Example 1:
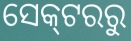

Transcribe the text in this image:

ସେକ୍‌ଟରରୁ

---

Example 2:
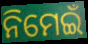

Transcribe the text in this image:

ନିମେଇଁ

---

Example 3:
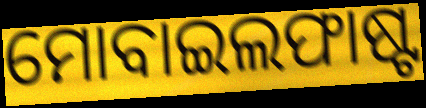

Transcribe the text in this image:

ମୋବାଇଲଫାଷ୍ଟ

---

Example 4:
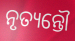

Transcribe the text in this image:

ନୃତ୍ୟନ୍ତୌ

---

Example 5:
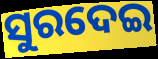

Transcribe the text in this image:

ସୁରଦେଇ